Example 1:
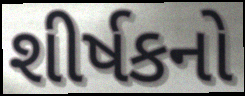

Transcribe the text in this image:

શીર્ષકનો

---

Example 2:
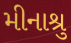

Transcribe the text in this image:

મીનાશ્રુ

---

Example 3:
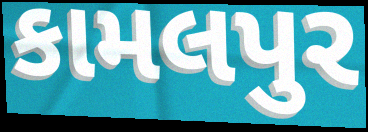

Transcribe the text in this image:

કામલપુર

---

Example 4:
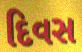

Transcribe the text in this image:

દિવસ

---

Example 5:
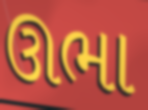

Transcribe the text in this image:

ઊભા